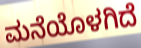
ಮನೆಯೊಳಗಿದೆ